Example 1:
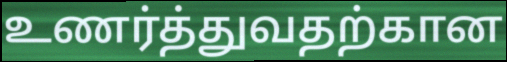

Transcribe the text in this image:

உணர்த்துவதற்கான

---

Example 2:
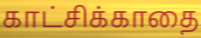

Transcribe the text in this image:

காட்சிக்காதை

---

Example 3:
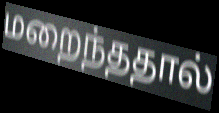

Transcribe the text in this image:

மறைந்ததால்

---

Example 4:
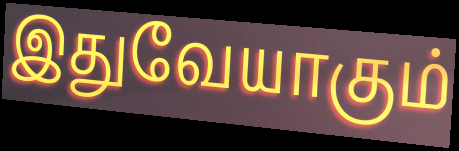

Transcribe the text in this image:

இதுவேயாகும்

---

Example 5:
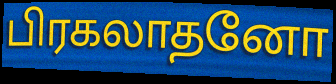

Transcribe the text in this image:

பிரகலாதனோ